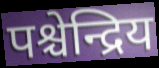
पश्चेन्द्रिय